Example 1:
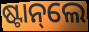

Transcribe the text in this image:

ଷ୍ଟାନ୍‌ଲେ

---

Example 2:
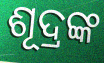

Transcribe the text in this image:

ଶୂଦ୍ରଙ୍କ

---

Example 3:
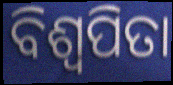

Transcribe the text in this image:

ବିଶ୍ୱପିତା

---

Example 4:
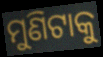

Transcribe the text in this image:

ମୁଣିଟାକୁ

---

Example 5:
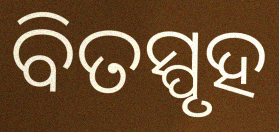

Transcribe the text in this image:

ବିତସ୍ପୃହ